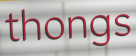
thongs